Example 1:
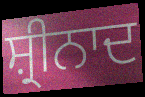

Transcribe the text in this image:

ਸ਼੍ਰੀਨਾਦ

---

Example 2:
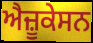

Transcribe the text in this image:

ਐਜ਼ੂਕੇਸਨ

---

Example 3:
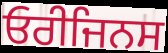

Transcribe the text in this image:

ਓਰੀਜਿਨਸ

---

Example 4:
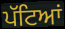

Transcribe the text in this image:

ਪੱਟਿਆਂ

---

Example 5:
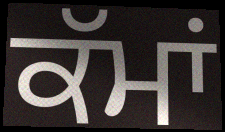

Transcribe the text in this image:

ਕੱਮਾਂ